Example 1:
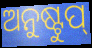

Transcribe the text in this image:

ଅନୁଷ୍ଟୁପ୍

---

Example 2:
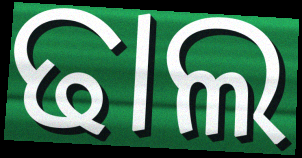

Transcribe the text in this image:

ଢାଲ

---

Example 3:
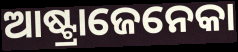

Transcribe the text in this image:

ଆଷ୍ଟ୍ରାଜେନେକା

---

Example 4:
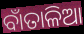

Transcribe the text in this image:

ବାଁତାଳିଆ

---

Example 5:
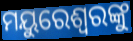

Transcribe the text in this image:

ମୟୁରେଶ୍ବରଙ୍କୁ